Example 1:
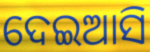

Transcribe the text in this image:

ଦେଇଆସି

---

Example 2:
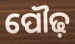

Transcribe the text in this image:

ପୌଢ଼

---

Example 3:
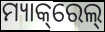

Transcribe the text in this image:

ମ୍ୟାକ୍‌ରେଲ୍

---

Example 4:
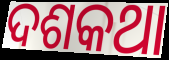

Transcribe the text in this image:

ଦଶକଥା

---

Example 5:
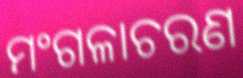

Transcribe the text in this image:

ମଂଗଳାଚରଣ